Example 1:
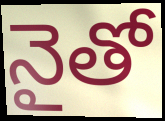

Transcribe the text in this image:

నైతో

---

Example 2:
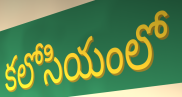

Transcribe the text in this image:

కలోసియంలో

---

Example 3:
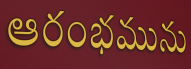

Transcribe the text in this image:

ఆరంభమును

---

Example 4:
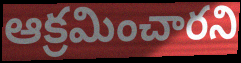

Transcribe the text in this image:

ఆక్రమించారని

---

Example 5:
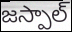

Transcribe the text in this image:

జస్పాల్